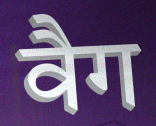
वैग